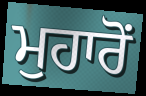
ਮੁਹਾਰੋਂ